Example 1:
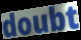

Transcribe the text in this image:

doubt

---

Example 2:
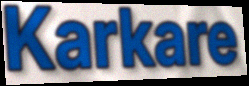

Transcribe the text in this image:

Karkare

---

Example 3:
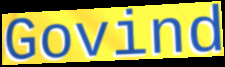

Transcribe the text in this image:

Govind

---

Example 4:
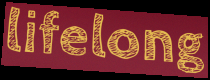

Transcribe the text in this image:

lifelong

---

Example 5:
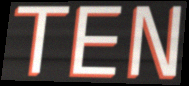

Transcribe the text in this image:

TEN